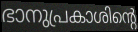
ഭാനുപ്രകാശിന്റെ